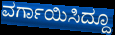
ವರ್ಗಾಯಿಸಿದ್ದೂ